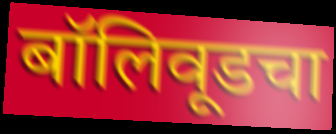
बॉलिवूडचा